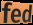
fed